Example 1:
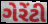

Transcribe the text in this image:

ગેરેંટી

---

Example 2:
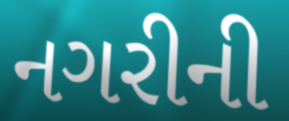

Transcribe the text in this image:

નગરીની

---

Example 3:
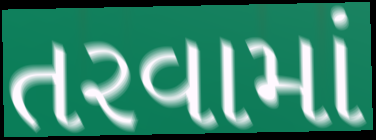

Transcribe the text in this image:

તરવામાં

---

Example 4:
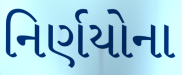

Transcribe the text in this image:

નિર્ણયોના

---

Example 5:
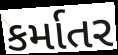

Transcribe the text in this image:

કર્માતર